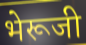
भेरूजी